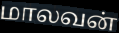
மாலவன்